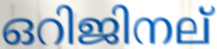
ഒറിജിനല്